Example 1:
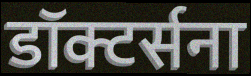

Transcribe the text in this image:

डॉक्टर्सना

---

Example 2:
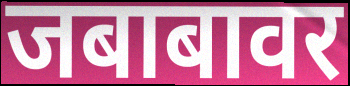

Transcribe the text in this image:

जबाबावर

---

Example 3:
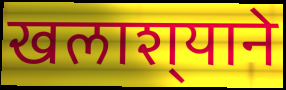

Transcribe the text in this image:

खलाश्याने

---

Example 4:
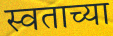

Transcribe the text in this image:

स्वताच्या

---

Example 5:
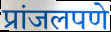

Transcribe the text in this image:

प्रांजलपणे